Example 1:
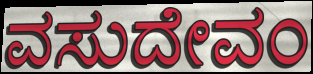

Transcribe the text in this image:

ವಸುದೇವಂ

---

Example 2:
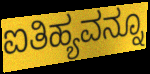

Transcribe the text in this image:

ಐತಿಹ್ಯವನ್ನೂ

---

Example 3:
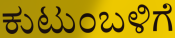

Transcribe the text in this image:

ಕುಟುಂಬಳಿಗೆ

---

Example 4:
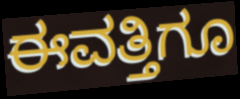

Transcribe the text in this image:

ಈವತ್ತಿಗೂ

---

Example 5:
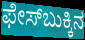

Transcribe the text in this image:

ಫೇಸ್‌ಬುಕ್ಕಿನ